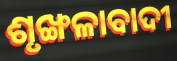
ଶୃଙ୍ଖଳାବାଦୀ